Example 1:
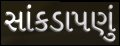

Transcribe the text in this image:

સાંકડાપણું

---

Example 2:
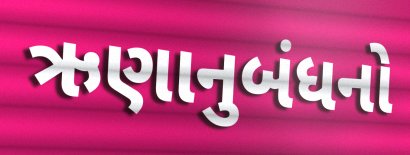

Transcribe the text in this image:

ઋણાનુબંધનો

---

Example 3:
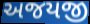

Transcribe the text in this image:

અજયજી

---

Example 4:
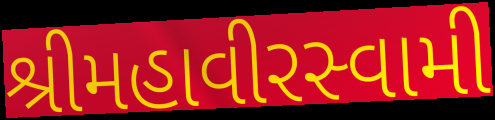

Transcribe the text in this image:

શ્રીમહાવીરસ્વામી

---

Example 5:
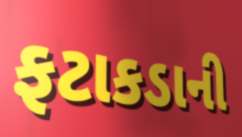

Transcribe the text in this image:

ફટાકડાની